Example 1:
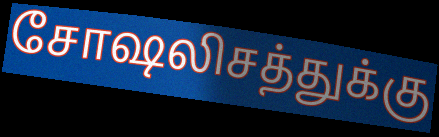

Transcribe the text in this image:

சோஷலிசத்துக்கு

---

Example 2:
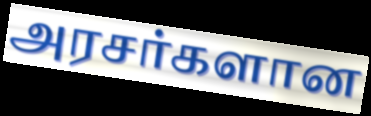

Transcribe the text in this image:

அரசர்களான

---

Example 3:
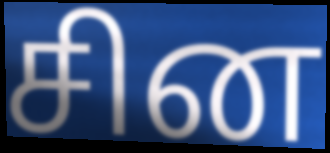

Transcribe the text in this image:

சின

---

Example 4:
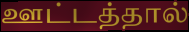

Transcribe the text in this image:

ஊட்டத்தால்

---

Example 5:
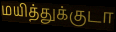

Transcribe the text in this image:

மயித்துக்குடா